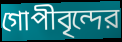
গোপীবৃন্দের